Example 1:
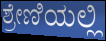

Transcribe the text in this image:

ಶ್ರೇಣಿಯಲ್ಲಿ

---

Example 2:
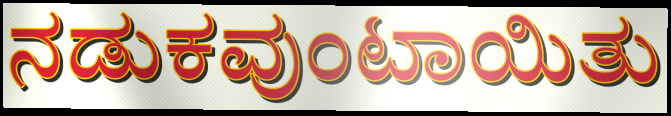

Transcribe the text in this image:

ನಡುಕವುಂಟಾಯಿತು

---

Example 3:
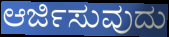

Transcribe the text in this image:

ಆರ್ಜಿಸುವುದು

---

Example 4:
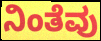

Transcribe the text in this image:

ನಿಂತೆವು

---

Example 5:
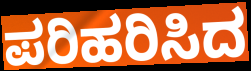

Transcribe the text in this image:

ಪರಿಹರಿಸಿದ